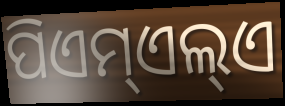
ପିଏମ୍ଏଲ୍ଏ